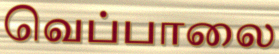
வெப்பாலை